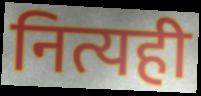
नित्यही